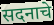
सदनाचे